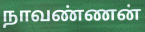
நாவண்ணன்